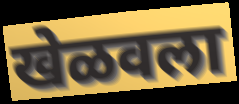
खेळवला